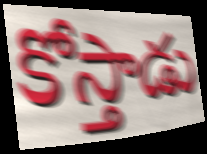
కోస్తాడు